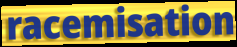
racemisation